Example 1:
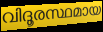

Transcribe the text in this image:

വിദൂരസ്ഥമായ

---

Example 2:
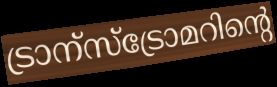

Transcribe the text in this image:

ട്രാന്സ്ട്രോമറിന്റെ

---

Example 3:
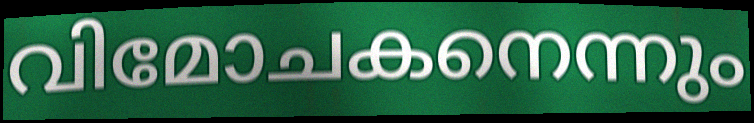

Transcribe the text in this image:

വിമോചകനെന്നും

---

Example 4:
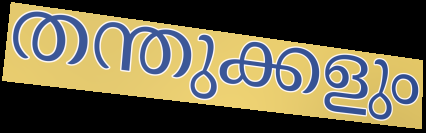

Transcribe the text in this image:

തന്തുക്കളും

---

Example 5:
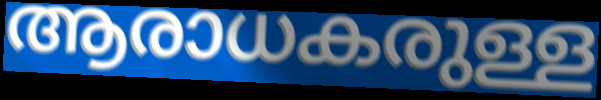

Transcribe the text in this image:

ആരാധകരുള്ള